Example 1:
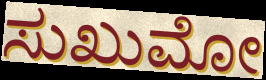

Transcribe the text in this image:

ಸುಖುಮೋ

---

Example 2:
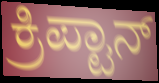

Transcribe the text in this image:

ಕ್ರಿಪ್ಟಾನ್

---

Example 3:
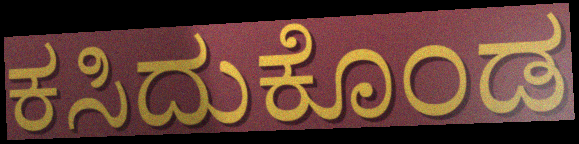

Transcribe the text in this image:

ಕಸಿದುಕೊಂಡ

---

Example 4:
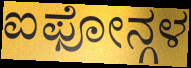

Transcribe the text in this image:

ಐಫೋನ್ಗಳ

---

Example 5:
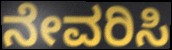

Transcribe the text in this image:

ನೇವರಿಸಿ